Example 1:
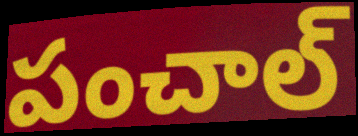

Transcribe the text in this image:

పంచాల్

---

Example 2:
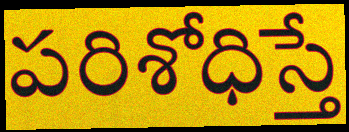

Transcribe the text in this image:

పరిశోధిస్తే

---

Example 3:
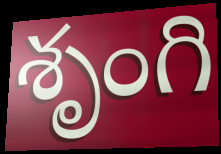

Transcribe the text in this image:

శృంగి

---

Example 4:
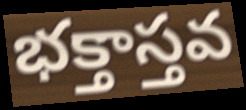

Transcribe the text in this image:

భక్తాస్తవ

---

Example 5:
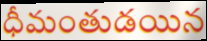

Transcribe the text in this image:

ధీమంతుడయిన